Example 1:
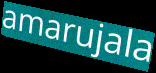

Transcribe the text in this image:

amarujala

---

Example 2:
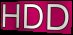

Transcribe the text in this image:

HDD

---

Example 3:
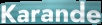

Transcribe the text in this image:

Karande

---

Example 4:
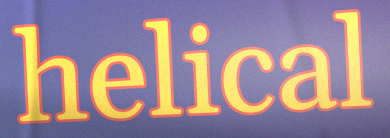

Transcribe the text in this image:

helical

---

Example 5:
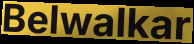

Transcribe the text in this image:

Belwalkar